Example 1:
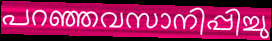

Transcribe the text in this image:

പറഞ്ഞവസാനിപ്പിച്ചു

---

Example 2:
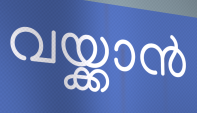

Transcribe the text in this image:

വയ്ക്കാൻ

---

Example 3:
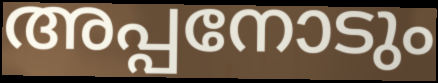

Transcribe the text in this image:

അപ്പനോടും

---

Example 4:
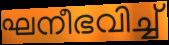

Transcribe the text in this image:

ഘനീഭവിച്ച്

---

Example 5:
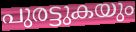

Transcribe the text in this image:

പുരട്ടുകയും